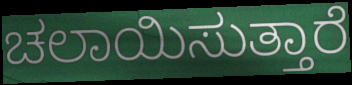
ಚಲಾಯಿಸುತ್ತಾರೆ